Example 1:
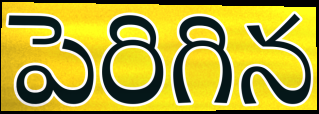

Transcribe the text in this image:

పెరిగిన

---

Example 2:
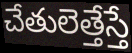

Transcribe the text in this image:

చేతులెత్తేస్తే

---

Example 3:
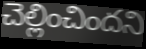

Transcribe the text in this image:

చెల్లించిందని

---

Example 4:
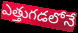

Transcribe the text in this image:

ఎత్తుగడలోనే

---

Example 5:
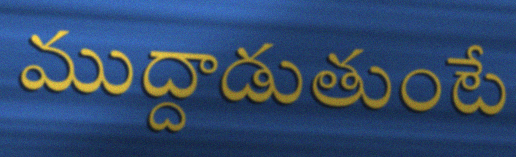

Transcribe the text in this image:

ముద్దాడుతుంటే